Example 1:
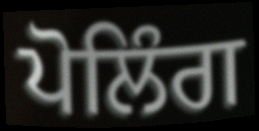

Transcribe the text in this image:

ਪੋਲਿੰਗ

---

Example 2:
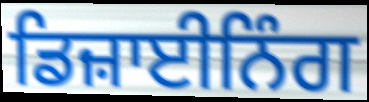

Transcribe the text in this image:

ਡਿਜ਼ਾਈਨਿੰਗ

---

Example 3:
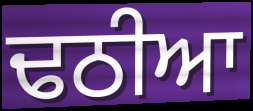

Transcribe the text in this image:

ਢਠੀਆ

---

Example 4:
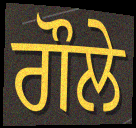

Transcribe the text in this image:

ਗੌਲੇ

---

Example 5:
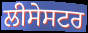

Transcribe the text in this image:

ਲੀਸੇਸਟਰ